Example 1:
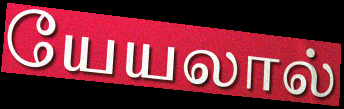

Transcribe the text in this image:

யேயலால்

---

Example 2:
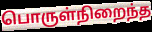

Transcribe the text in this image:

பொருள்நிறைந்த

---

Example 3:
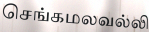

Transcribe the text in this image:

செங்கமலவல்லி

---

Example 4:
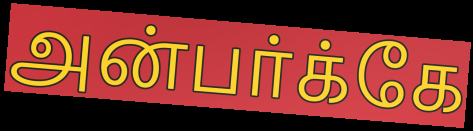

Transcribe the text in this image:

அன்பர்க்கே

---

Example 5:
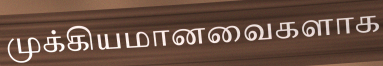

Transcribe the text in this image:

முக்கியமானவைகளாக